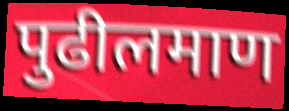
पुढीलमाण